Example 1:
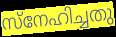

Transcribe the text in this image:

സ്നേഹിച്ചതു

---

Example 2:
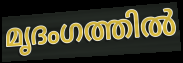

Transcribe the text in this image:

മൃദംഗത്തിൽ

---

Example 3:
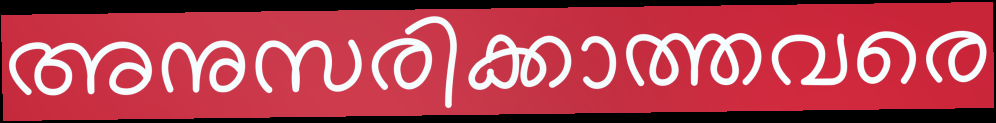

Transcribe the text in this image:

അനുസരിക്കാത്തവരെ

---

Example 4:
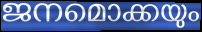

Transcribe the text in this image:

ജനമൊക്കയും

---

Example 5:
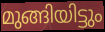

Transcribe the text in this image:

മുങ്ങിയിട്ടും